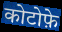
कोटोफ़े